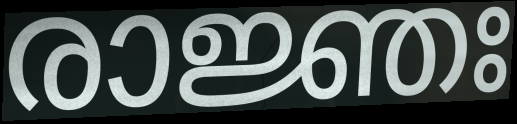
രാജ്ഞഃ